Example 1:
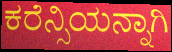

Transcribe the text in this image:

ಕರೆನ್ಸಿಯನ್ನಾಗಿ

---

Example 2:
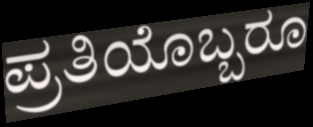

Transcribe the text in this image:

ಪ್ರತಿಯೊಬ್ಬರೂ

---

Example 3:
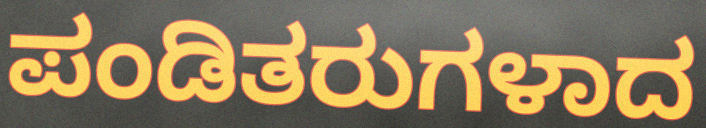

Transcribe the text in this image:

ಪಂಡಿತರುಗಳಾದ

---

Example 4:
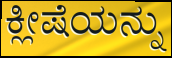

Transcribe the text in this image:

ಕ್ಲೀಷೆಯನ್ನು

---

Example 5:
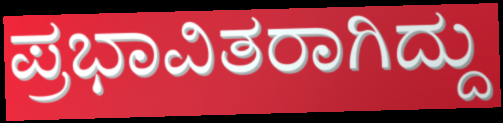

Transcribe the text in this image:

ಪ್ರಭಾವಿತರಾಗಿದ್ದು